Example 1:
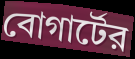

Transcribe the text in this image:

বোগার্টের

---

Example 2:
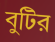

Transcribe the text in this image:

বুটির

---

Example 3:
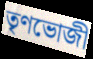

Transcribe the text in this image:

তৃণভোজী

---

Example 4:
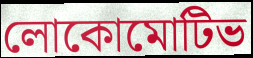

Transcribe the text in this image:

লোকোমোটিভ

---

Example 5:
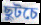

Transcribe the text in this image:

ছুটচে